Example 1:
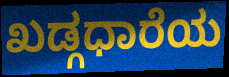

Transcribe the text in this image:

ಖಡ್ಗಧಾರೆಯ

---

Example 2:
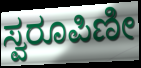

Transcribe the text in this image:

ಸ್ವರೂಪಿಣೀ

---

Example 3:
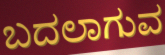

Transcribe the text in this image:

ಬದಲಾಗುವ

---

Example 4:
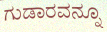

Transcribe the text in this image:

ಗುಡಾರವನ್ನೂ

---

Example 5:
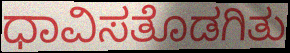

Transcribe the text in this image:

ಧಾವಿಸತೊಡಗಿತು